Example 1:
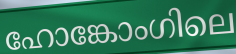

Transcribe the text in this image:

ഹോങ്കോംഗിലെ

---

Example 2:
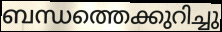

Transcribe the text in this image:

ബന്ധത്തെക്കുറിച്ചു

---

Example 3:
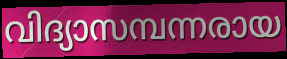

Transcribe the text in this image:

വിദ്യാസമ്പന്നരായ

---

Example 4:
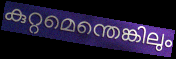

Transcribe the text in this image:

കുറ്റമെന്തെങ്കിലും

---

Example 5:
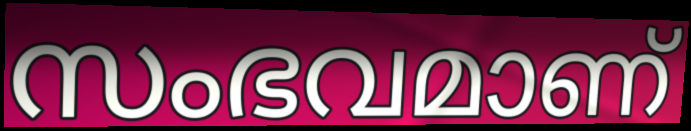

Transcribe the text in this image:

സംഭവമാണ്